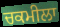
ਚਕਮੀਲਾ